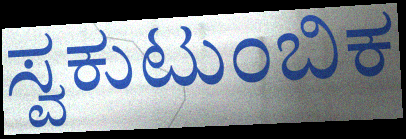
ಸ್ವಕುಟುಂಬಿಕ